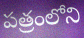
పత్రంలోని